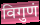
विगुणं